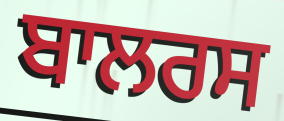
ਬਾਲਰਸ